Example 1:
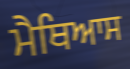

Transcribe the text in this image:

ਮੈਥਿਆਸ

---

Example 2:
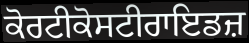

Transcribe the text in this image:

ਕੋਰਟੀਕੋਸਟੀਰਾਇਡਜ਼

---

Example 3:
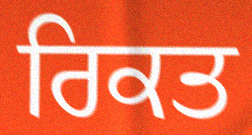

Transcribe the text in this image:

ਰਿਕਤ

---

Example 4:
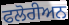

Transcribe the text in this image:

ਫਲੋਰੀਅਨ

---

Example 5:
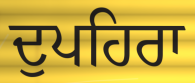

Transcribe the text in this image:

ਦੁਪਹਿਰਾ